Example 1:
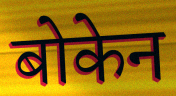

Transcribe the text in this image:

बोकेन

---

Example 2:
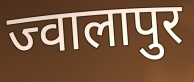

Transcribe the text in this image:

ज्वालापुर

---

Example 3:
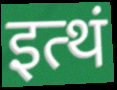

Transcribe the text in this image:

इत्थं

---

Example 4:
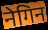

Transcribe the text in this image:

नेगिन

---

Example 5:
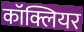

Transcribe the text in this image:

कॉक्लियर